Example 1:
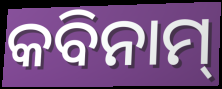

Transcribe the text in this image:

କବିନାମ୍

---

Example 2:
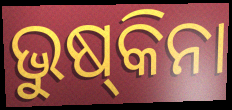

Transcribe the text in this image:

ଭୁଷ୍‌କିନା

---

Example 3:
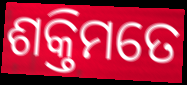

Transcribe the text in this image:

ଶକ୍ତିମତେ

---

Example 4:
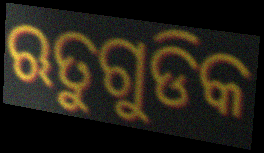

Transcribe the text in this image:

ଋତୁଗୁଡିକ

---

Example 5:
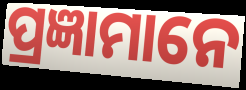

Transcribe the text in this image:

ପ୍ରଜ୍ଞାମାନେ